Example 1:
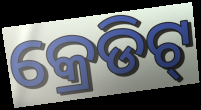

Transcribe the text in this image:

କ୍ରେଡିଟ୍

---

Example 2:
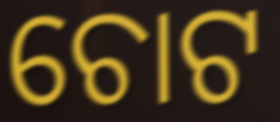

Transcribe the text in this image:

ଚୋଟ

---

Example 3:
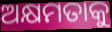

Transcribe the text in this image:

ଅକ୍ଷମତାକୁ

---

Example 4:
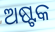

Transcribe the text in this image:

ଅଷ୍ଟକ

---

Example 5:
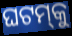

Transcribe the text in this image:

ଘଟମ୍‌କୁ